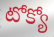
టోక్యో